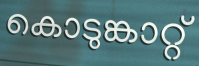
കൊടുങ്കാറ്റ്